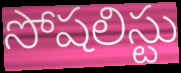
సోషలిస్టు